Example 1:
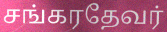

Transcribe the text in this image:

சங்கரதேவர்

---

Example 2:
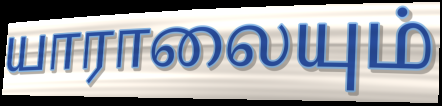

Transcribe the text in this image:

யாராலையும்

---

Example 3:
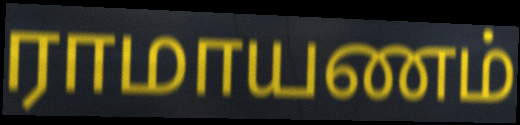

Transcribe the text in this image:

ராமாயணம்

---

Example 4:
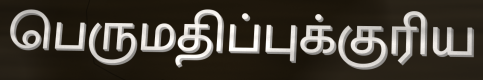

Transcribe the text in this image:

பெருமதிப்புக்குரிய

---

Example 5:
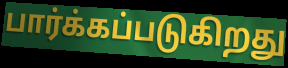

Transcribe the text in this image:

பார்க்கப்படுகிறது